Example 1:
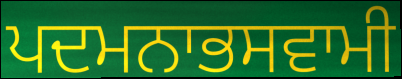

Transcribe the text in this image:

ਪਦਮਨਾਭਸਵਾਮੀ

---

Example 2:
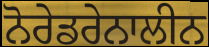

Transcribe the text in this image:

ਨੋਰੇਡਰੇਨਾਲੀਨ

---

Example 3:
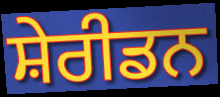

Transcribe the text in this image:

ਸ਼ੇਰੀਡਨ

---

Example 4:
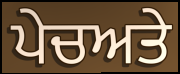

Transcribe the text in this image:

ਪੇਚਅਤੇ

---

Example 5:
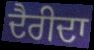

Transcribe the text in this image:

ਦੈਰੀਦਾ